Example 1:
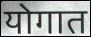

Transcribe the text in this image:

योगात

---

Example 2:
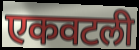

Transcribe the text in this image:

एकवटली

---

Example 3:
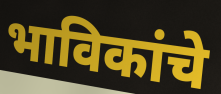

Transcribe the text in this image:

भाविकांचे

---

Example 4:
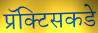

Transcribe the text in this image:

प्रॅक्टिसकडे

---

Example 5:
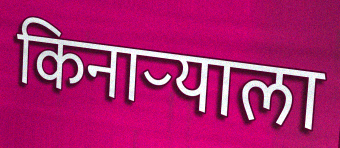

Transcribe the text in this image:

किनाऱ्याला